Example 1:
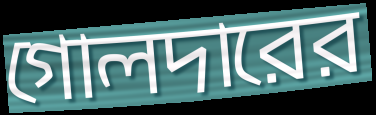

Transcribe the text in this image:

গোলদারের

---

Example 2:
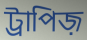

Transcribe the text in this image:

ট্রাপিজ়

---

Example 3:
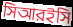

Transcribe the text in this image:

সিআরইসি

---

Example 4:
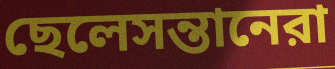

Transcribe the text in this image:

ছেলেসন্তানেরা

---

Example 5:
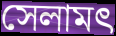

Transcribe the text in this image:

সেলামৎ